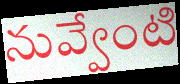
నువ్వేంటి